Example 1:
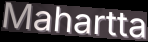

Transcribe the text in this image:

Mahartta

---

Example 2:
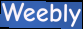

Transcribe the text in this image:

Weebly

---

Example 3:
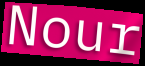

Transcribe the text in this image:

Nour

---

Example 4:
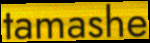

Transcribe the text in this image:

tamashe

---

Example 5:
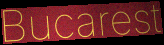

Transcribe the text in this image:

Bucarest